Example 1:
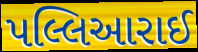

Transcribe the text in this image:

પલ્લિઆરાઈ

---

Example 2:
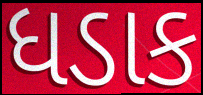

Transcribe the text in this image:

ધડાક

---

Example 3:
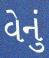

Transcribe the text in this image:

વેનું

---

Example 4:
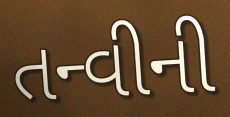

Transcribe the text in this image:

તન્વીની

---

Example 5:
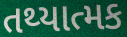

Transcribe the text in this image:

તથ્યાત્મક